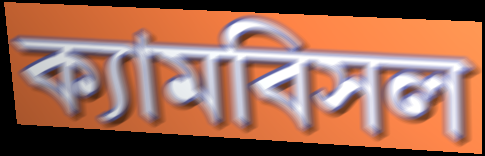
ক্যামবিসল